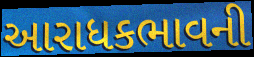
આરાધકભાવની